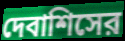
দেবাশিসের